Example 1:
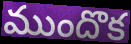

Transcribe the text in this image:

ముందొక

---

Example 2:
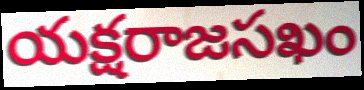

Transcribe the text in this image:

యక్షరాజసఖం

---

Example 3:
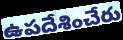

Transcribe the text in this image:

ఉపదేశించేరు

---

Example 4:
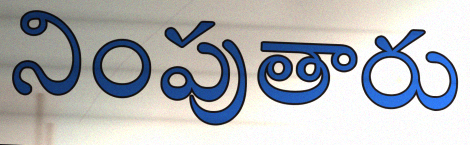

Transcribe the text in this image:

నింపుతారు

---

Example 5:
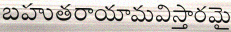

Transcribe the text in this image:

బహుతరాయామవిస్తారమై